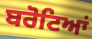
ਬਰੋਟਿਆਂ